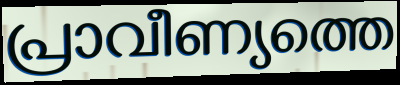
പ്രാവീണ്യത്തെ